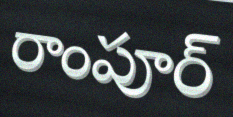
రాంపూర్